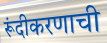
रूंदीकरणाची